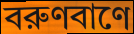
বরুণবাণে